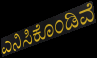
ಎನಿಸಿಕೊಂಡಿವೆ